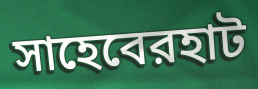
সাহেবেরহাট